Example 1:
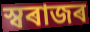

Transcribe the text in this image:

স্বৰাজৰ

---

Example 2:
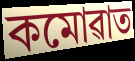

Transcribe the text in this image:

কমোৱাত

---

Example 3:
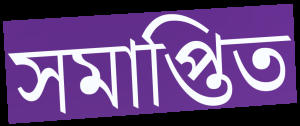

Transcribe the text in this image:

সমাপ্তিত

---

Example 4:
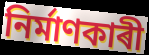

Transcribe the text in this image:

নিৰ্মাণকাৰী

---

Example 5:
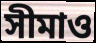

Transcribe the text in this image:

সীমাও